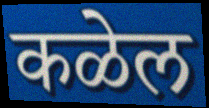
कळेल